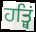
ਹਤ੍ਥਿਂ